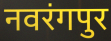
नवरंगपुर